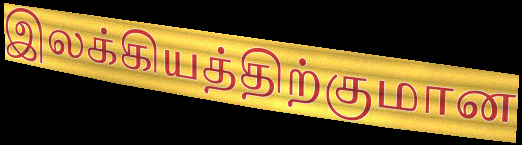
இலக்கியத்திற்குமான